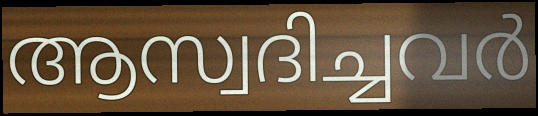
ആസ്വദിച്ചവർ